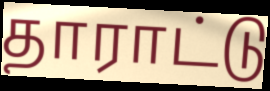
தாராட்டு